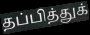
தப்பித்துக்